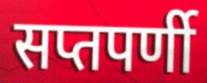
सप्तपर्णी